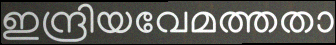
ഇന്ദ്രിയവേമത്തതാ